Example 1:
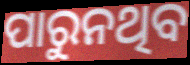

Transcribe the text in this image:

ପାରୁନଥିବ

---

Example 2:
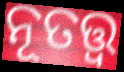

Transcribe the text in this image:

ନୂତତ୍ତ୍ଵ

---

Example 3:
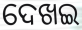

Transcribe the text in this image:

ଦେଖଇ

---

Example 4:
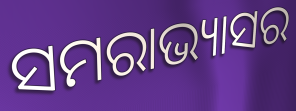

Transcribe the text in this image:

ସମରାଭ୍ୟାସର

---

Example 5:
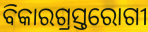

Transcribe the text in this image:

ବିକାରଗ୍ରସ୍ତରୋଗୀ